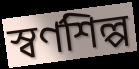
স্বর্ণশিল্প